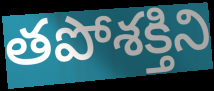
తపోశక్తిని